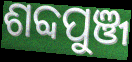
ଶବ୍ଦପୁଞ୍ଜ